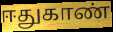
ஈதுகாண்